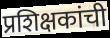
प्रशिक्षकांची